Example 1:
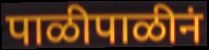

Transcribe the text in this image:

पाळीपाळीनं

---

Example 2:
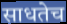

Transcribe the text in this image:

साधतेच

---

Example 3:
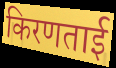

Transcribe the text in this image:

किरणताई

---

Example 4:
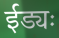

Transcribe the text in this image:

ईड्यः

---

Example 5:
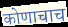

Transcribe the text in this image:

कोणाचाच